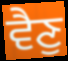
ਵੈਣੁ